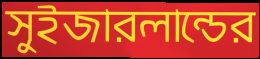
সুইজারলান্ডের